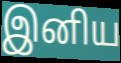
இனிய